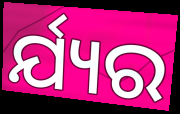
ର୍ଯ୍ୟର